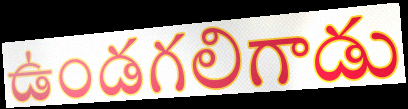
ఉండగలిగాడు